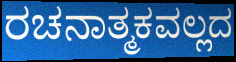
ರಚನಾತ್ಮಕವಲ್ಲದ